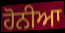
ਹੋਨੀਆ